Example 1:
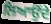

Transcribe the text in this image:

ਲਿਆਉਂਦੇ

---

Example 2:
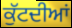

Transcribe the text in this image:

ਕੁੱਟਦੀਆਂ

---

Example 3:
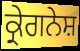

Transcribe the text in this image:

ਕ੍ਰੇਗਨੇਸ਼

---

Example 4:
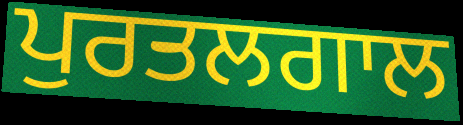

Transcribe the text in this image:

ਪੁਰਤਲਗਾਲ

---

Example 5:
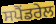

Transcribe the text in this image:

ਸਪੈਂਡਰੇਲ